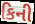
કિની